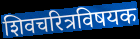
शिवचरित्रविषयक